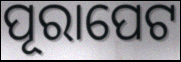
ପୂରାପେଟ